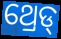
ଥ୍ରେଡ୍